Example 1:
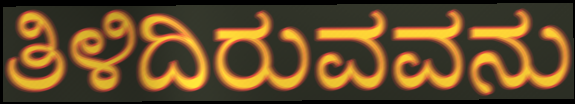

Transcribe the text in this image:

ತಿಳಿದಿರುವವನು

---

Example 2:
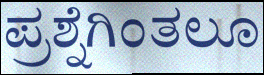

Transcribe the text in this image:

ಪ್ರಶ್ನೆಗಿಂತಲೂ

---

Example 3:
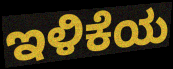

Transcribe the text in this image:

ಇಳಿಕೆಯ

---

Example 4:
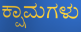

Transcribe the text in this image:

ಕ್ಷಾಮಗಳು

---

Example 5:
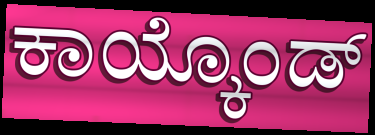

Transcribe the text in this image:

ಕಾಯ್ಕೊಂಡ್